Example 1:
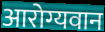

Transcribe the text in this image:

आरोग्यवान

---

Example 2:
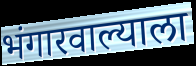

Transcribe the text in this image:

भंगारवाल्याला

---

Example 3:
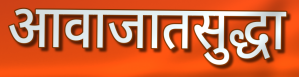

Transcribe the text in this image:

आवाजातसुद्धा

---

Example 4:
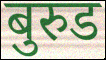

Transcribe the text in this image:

बुरुड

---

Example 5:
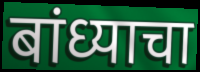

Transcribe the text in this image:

बांध्याचा